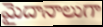
మైదానాలుగా